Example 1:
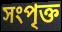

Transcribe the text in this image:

সংপৃক্ত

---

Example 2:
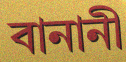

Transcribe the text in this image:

বানানী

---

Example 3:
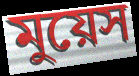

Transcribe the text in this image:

মুয়েস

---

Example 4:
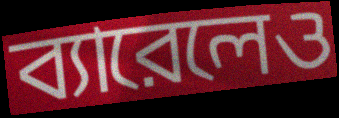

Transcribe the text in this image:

ব্যারেলেও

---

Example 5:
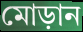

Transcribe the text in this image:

মোড়ান